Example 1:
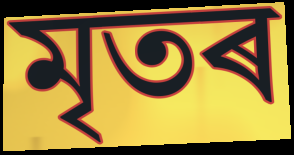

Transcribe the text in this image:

মৃতৰ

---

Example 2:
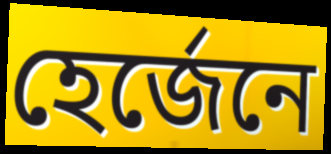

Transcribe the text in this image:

হেৰ্জেনে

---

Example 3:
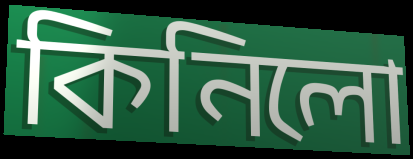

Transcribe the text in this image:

কিনিলো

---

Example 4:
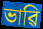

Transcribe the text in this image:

ভাৱি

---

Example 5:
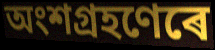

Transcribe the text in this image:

অংশগ্ৰহণেৰে